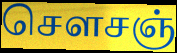
செளசஞ்